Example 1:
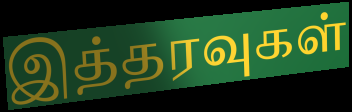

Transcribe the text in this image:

இத்தரவுகள்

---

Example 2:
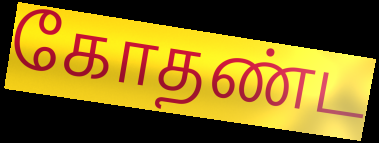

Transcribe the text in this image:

கோதண்ட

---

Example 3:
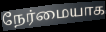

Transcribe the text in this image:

நேர்மையாக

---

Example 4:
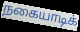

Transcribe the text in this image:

நகையாடிக்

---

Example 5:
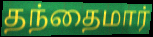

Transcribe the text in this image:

தந்தைமார்